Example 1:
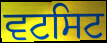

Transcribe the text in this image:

ਵਟਸਿਟ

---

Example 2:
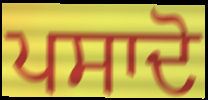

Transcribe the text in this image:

ਪਸਾਦੋ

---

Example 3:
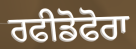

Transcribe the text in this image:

ਰਫੀਡੋਫੋਰਾ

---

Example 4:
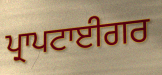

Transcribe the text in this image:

ਪ੍ਰਾਪਟਾਈਗਰ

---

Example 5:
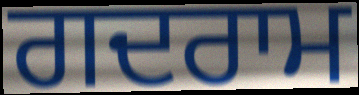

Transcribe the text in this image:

ਗਦਰਾਮ